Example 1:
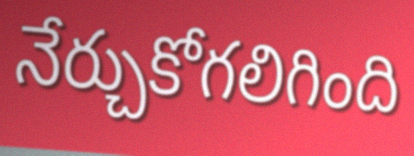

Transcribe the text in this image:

నేర్చుకోగలిగింది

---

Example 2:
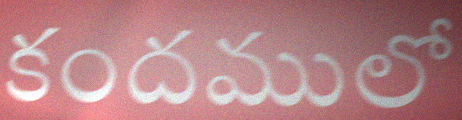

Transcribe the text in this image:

కందములో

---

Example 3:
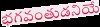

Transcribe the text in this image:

భగవంతుడనియే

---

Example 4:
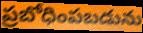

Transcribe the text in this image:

ప్రబోధింపబడును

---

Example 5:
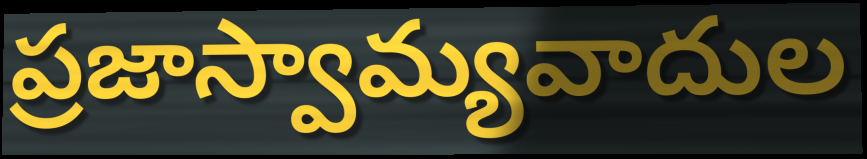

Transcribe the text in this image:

ప్రజాస్వామ్యవాదుల